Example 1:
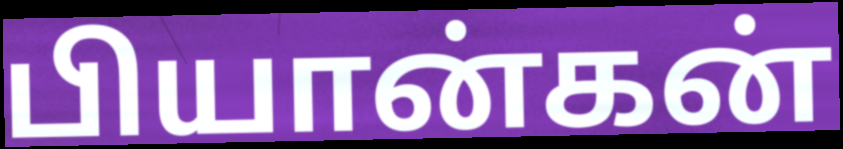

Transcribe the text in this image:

பியான்கன்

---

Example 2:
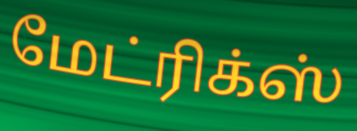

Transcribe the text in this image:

மேட்ரிக்ஸ்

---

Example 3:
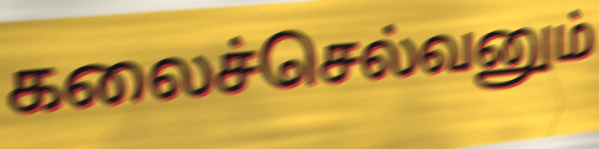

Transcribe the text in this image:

கலைச்செல்வனும்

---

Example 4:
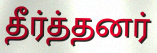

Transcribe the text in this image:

தீர்த்தனர்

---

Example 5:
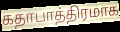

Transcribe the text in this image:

கதாபாத்திரமாக